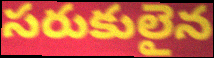
సరుకులైన